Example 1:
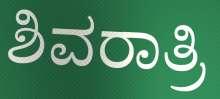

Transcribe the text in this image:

ಶಿವರಾತ್ರಿ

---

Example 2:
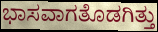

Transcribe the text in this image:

ಭಾಸವಾಗತೊಡಗಿತ್ತು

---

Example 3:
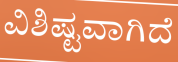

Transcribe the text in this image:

ವಿಶಿಷ್ಟವಾಗಿದೆ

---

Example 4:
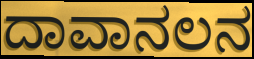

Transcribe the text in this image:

ದಾವಾನಲನ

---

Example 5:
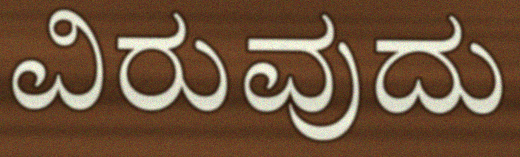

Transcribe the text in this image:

ವಿರುವುದು